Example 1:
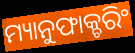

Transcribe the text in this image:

ମ୍ୟାନୁଫାକ୍ଚରିଂ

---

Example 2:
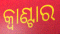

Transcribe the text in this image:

କ୍ୱାଣ୍ଟାର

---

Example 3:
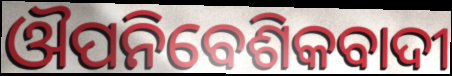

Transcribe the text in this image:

ଔପନିବେଶିକବାଦୀ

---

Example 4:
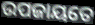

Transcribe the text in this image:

ଉପଜାୟତେ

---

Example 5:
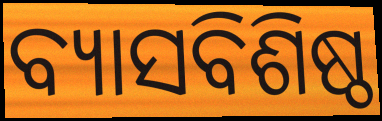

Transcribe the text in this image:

ବ୍ୟାସବିଶିଷ୍ଠ